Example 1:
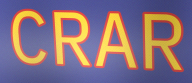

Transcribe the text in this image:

CRAR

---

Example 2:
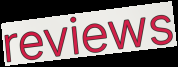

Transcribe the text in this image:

reviews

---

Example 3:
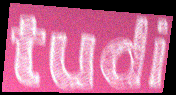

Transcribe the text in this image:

tudi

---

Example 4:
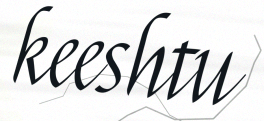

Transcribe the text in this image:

keeshtu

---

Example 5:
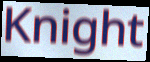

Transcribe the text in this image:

Knight